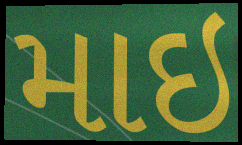
માઇ